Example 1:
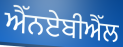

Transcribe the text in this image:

ਐੱਨਏਬੀਐੱਲ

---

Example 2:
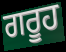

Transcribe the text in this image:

ਗਰੂਹ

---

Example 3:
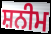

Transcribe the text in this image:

ਸ਼ਨੀਮ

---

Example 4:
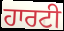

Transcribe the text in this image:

ਹਾਰਟੀ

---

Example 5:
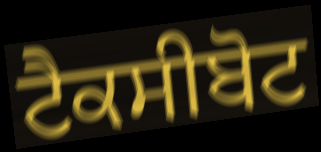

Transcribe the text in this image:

ਟੈਕਸੀਬੋਟ